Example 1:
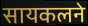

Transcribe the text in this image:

सायकलने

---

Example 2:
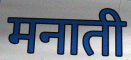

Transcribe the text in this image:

मनाती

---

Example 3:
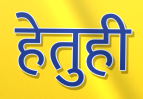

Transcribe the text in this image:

हेतुही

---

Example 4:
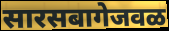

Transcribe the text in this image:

सारसबागेजवळ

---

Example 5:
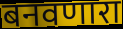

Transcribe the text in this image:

बनवणारा